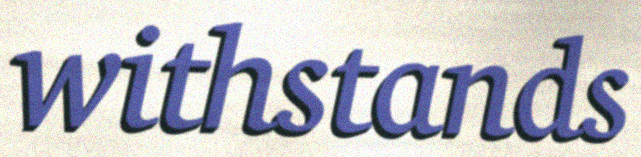
withstands